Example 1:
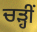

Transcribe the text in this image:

ਚੜ੍ਹੀਂ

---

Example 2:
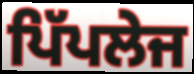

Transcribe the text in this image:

ਪਿੱਪਲੇਜ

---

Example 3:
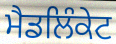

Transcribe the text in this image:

ਮੈਡਲਿੰਕੇਟ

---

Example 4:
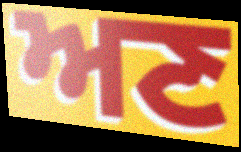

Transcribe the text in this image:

ਅਣ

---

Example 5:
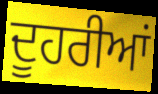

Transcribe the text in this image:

ਦੂਹਰੀਆਂ